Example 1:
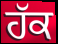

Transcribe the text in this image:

ਹੱਕ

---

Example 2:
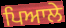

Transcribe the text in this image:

ਪਿਆਲੇ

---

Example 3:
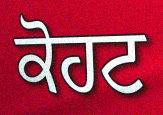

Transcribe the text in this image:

ਕੋਹਟ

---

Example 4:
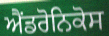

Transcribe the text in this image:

ਐਂਡਰੋਨਿਕੋਸ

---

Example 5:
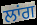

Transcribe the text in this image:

ਲਾਂਗ